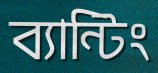
ব্যান্টিং